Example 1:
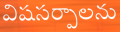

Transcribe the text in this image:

విషసర్పాలను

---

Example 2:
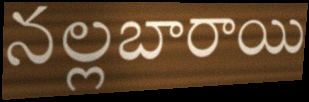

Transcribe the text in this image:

నల్లబారాయి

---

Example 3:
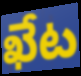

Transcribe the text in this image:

ఖేట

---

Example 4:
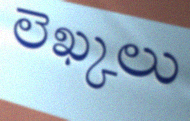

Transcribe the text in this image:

లెఖ్కలు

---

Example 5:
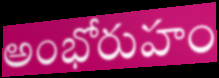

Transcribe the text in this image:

అంభోరుహం